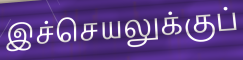
இச்செயலுக்குப்